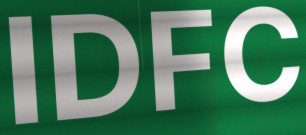
IDFC